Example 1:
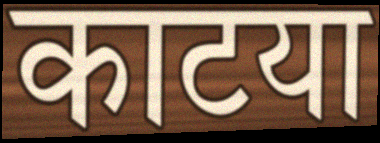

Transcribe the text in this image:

काटया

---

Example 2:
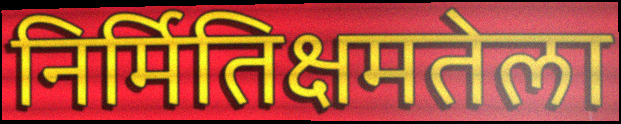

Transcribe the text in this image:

निर्मितिक्षमतेला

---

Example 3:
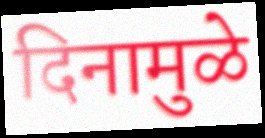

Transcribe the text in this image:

दिनामुळे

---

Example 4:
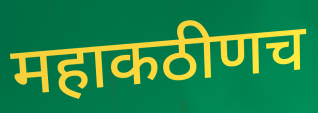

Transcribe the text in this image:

महाकठीणच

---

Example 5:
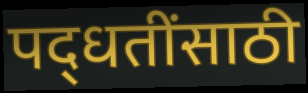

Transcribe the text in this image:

पद्धतींसाठी